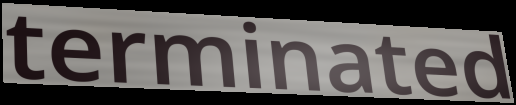
terminated